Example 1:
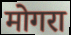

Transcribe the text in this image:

मोगरा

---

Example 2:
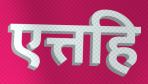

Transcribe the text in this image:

एत्तहि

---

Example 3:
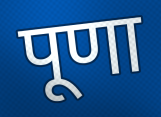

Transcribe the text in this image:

पूणा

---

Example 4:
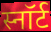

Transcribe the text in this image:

स्नॉर्ट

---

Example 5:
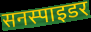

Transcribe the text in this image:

सनस्पाइडर